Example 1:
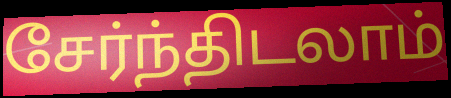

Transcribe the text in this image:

சேர்ந்திடலாம்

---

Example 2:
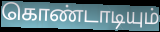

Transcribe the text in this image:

கொண்டாடியும்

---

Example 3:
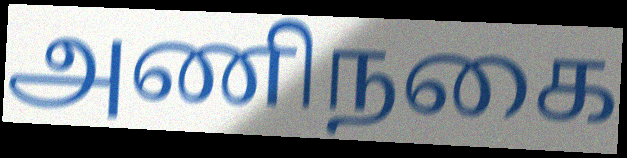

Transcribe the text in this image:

அணிநகை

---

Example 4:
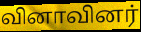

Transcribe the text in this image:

வினாவினர்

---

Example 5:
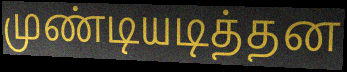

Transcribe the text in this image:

முண்டியடித்தன